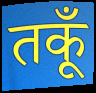
तकूँ